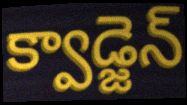
క్వాడ్జెన్